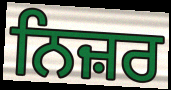
ਨਿਜ਼ਰ